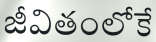
జీవితంలోకే